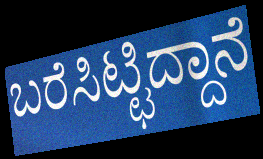
ಬರೆಸಿಟ್ಟಿದ್ದಾನೆ